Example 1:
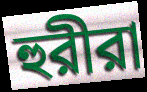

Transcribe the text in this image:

হুরীরা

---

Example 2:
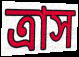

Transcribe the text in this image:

ত্রাস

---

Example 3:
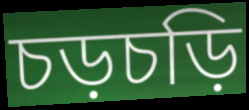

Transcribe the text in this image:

চড়চড়ি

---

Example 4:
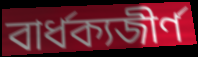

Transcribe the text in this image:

বার্ধক্যজীর্ণ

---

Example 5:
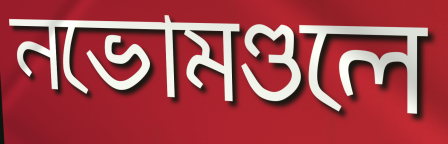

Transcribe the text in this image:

নভোমণ্ডলে